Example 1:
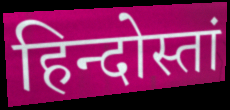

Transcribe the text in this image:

हिन्दोस्तां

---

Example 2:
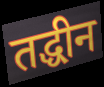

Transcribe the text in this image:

तद्धीन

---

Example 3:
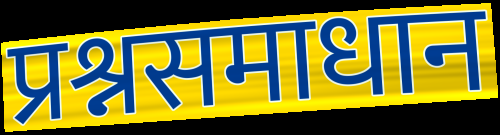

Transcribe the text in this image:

प्रश्नसमाधान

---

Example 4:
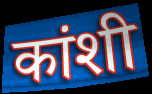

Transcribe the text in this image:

कांशी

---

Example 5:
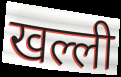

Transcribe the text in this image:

खल्ली